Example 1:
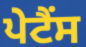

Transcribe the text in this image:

ਪੇਟੈਂਸ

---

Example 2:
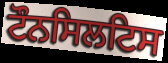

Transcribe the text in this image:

ਟੌਨਸਿਲਟਿਸ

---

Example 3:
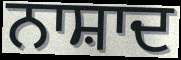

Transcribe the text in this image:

ਨਾਸ਼ਾਦ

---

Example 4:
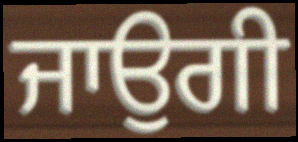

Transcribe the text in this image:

ਜਾਉਗੀ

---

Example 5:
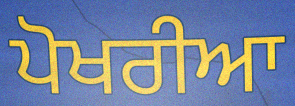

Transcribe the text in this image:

ਪੋਖਰੀਆ